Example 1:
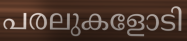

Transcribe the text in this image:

പരലുകളോടി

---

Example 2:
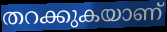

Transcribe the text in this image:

തറക്കുകയാണ്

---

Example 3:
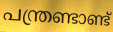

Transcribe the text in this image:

പന്ത്രണ്ടാണ്ട്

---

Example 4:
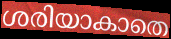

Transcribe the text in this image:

ശരിയാകാതെ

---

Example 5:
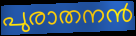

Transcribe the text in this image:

പുരാതനൻ